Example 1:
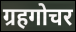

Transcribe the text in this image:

ग्रहगोचर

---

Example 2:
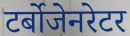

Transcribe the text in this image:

टर्बोजेनरेटर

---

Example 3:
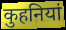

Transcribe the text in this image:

कुहनियां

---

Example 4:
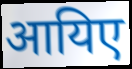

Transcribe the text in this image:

आयिए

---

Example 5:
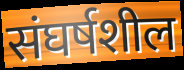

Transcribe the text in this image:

संघर्षशील